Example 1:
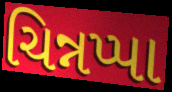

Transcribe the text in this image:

ચિન્નપ્પા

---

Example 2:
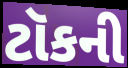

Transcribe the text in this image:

ટૉકની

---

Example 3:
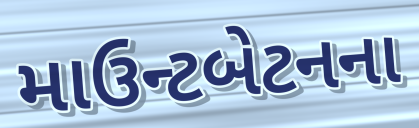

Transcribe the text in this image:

માઉન્ટબેટનના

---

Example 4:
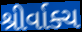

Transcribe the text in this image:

શ્રીર્વાક્ચ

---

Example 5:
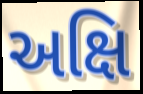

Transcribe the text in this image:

અક્ષિ